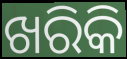
ଖରିକି